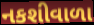
નકશીવાળા